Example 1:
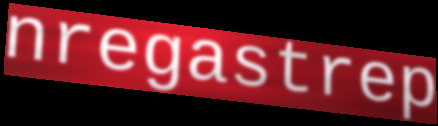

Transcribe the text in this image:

nregastrep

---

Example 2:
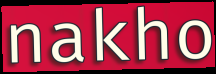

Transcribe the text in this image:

nakho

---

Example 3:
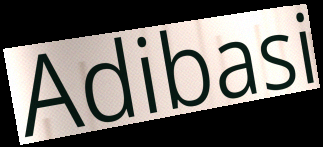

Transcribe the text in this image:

Adibasi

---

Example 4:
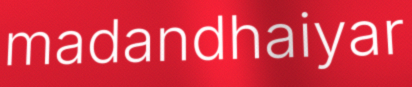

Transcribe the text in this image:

madandhaiyar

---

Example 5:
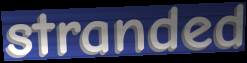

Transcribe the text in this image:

stranded